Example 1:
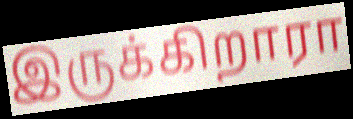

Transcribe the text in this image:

இருக்கிறாரா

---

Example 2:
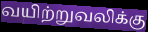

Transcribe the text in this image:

வயிற்றுவலிக்கு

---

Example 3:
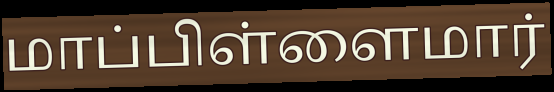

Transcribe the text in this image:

மாப்பிள்ளைமார்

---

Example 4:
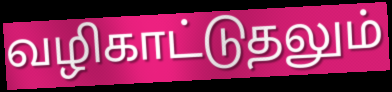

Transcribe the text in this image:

வழிகாட்டுதலும்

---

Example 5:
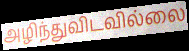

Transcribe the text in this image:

அழிந்துவிடவில்லை